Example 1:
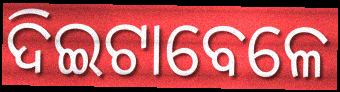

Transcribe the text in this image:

ଦିଇଟାବେଳେ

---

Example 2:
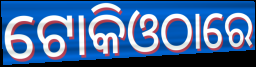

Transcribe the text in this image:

ଟୋକିଓଠାରେ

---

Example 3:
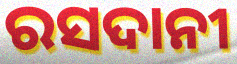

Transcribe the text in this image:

ରସଦାନୀ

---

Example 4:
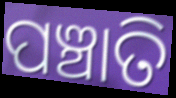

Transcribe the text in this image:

ପଞ୍ଚାତି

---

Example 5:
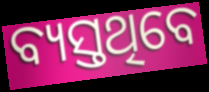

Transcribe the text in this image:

ବ୍ୟସ୍ତଥିବେ